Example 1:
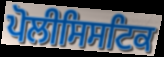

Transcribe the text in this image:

ਪੋਲੀਸਿਸਟਿਕ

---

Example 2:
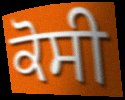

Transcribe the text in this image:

ਕੋਸੀ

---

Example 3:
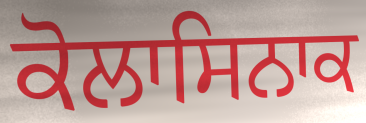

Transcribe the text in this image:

ਕੋਲਾਸਿਨਾਕ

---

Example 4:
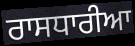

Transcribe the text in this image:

ਰਾਸਧਾਰੀਆ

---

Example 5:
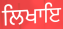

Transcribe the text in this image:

ਲਿਖਾਇ